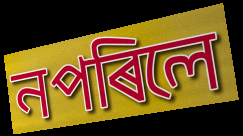
নপৰিলে